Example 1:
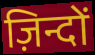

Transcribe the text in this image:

ज़िन्दों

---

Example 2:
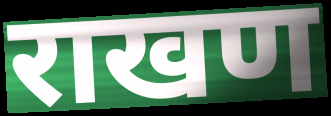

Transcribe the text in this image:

राखण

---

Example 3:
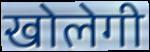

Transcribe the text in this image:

खोलेगी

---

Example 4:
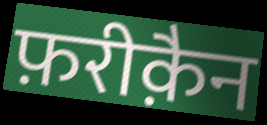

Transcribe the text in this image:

फ़रीक़ैन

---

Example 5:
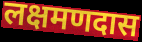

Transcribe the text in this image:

लक्षमणदास